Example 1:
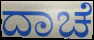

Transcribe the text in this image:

ದಾಚೆ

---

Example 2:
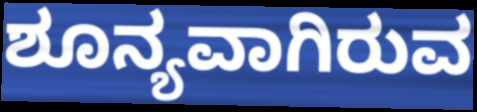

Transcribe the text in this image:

ಶೂನ್ಯವಾಗಿರುವ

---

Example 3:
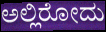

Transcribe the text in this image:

ಅಲ್ಲಿರೋದು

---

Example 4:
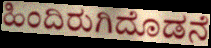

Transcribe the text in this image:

ಹಿಂದಿರುಗಿದೊಡನೆ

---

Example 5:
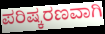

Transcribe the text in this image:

ಪರಿಷ್ಕರಣವಾಗಿ